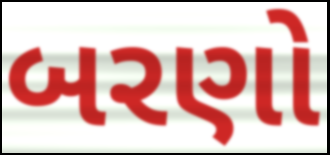
બરણો